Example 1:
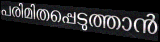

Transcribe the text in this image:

പരിമിതപ്പെടുത്താൻ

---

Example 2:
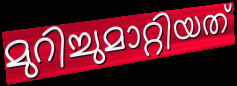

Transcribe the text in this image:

മുറിച്ചുമാറ്റിയത്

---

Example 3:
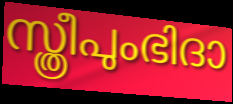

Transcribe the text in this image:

സ്ത്രീപുംഭിദാ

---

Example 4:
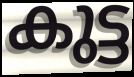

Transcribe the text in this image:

കുട്ട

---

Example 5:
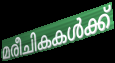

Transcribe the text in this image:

മരീചികകൾക്ക്